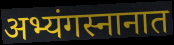
अभ्यंगस्नानात